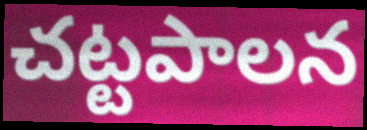
చట్టపాలన